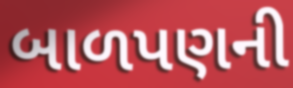
બાળપણની